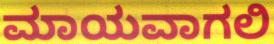
ಮಾಯವಾಗಲಿ